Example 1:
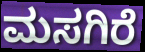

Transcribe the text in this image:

ಮಸಗಿರೆ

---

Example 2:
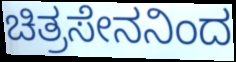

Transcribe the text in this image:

ಚಿತ್ರಸೇನನಿಂದ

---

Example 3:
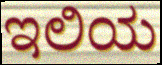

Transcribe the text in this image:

ಇಲಿಯ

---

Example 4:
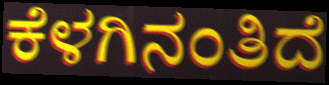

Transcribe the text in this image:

ಕೆಳಗಿನಂತಿದೆ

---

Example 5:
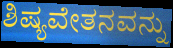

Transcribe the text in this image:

ಶಿಷ್ಯವೇತನವನ್ನು